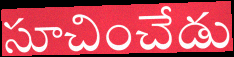
సూచించేడు